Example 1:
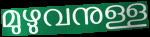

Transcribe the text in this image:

മുഴുവനുള്ള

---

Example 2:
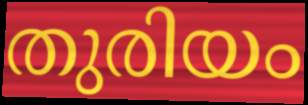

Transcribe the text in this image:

തുരിയം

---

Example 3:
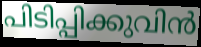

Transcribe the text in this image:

പിടിപ്പിക്കുവിൻ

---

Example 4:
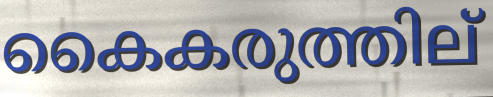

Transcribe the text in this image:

കൈകരുത്തില്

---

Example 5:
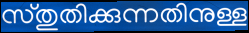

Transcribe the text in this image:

സ്തുതിക്കുന്നതിനുള്ള